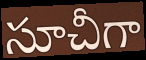
సూచీగా